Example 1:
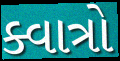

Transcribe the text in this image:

ક્વાત્રો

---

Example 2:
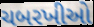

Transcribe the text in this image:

ચબરખીઓ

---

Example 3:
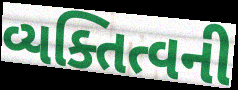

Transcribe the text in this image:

વ્યક્તિત્વની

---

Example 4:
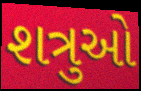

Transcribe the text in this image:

શત્રુઓ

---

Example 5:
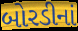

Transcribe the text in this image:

બોરડીનાં